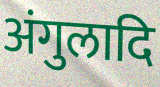
अंगुलादि